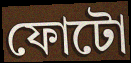
ফোটো